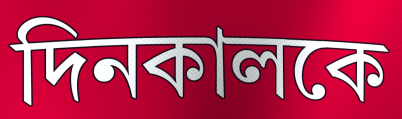
দিনকালকে